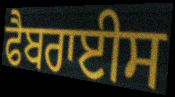
ਫੈਬਰਾਈਸ